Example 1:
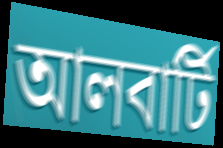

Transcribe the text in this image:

আলবার্টি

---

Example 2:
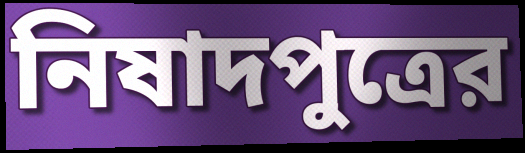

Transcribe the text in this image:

নিষাদপুত্রের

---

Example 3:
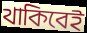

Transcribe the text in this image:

থাকিবেই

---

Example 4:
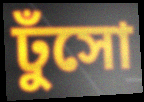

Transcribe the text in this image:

ঢুঁসো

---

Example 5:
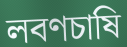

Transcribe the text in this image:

লবণচাষি